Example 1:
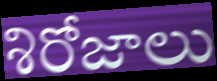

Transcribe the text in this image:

శిరోజాలు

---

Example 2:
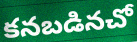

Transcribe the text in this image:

కనబడినచో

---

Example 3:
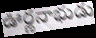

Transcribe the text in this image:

ఊర్ణనాభుడు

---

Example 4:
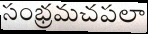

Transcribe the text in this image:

సంభ్రమచపలా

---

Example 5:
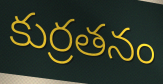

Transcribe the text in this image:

కుర్రతనం